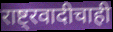
राष्ट्रवादीचाही